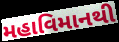
મહાવિમાનથી